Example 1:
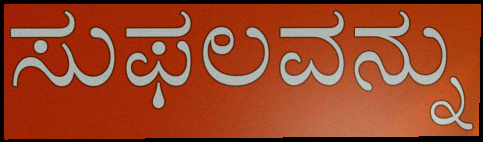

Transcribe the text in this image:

ಸುಫಲವನ್ನು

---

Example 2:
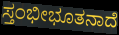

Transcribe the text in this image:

ಸ್ತಂಭೀಭೂತನಾದೆ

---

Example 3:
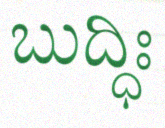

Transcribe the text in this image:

ಬುದ್ಧಿಃ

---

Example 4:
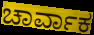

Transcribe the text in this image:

ಚಾರ್ವಾಕ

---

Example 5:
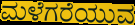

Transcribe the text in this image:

ಮಳೆಗರೆಯುವ